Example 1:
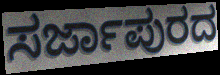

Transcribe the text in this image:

ಸರ್ಜಾಪುರದ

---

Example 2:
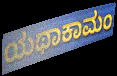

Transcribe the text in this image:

ಯಥಾಕಾಮಂ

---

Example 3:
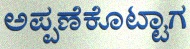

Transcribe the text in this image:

ಅಪ್ಪಣೆಕೊಟ್ಟಾಗ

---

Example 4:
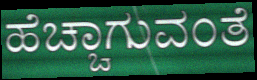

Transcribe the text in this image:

ಹೆಚ್ಚಾಗುವಂತೆ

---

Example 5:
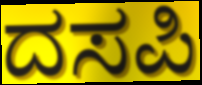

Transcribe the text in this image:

ದಸಪಿ